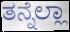
ತನ್ನೆಲ್ಲಾ